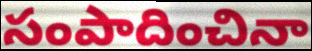
సంపాదించినా